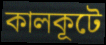
কালকূটে